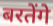
बरतेंगे